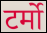
टर्मो